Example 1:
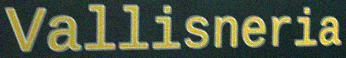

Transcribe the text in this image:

Vallisneria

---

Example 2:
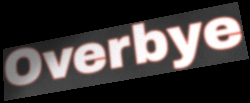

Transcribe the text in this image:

Overbye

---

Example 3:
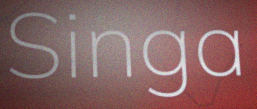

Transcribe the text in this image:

Singa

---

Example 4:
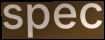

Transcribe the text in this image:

spec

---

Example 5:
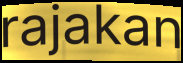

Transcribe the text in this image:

rajakan